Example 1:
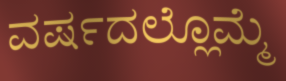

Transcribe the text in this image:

ವರ್ಷದಲ್ಲೊಮ್ಮೆ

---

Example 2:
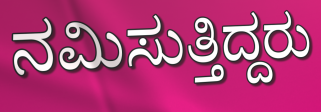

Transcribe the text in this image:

ನಮಿಸುತ್ತಿದ್ದರು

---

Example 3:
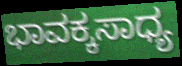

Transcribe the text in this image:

ಭಾವಕ್ಕಸಾಧ್ಯ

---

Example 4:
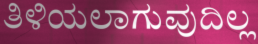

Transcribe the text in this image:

ತಿಳಿಯಲಾಗುವುದಿಲ್ಲ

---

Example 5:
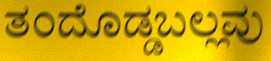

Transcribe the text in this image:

ತಂದೊಡ್ಡಬಲ್ಲವು